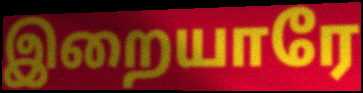
இறையாரே